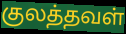
குலத்தவள்